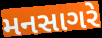
મનસાગરે